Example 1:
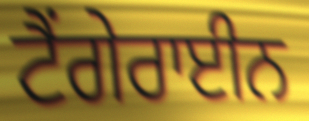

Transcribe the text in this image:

ਟੈਂਗੇਰਾਈਨ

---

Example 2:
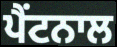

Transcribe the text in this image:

ਪੈਂਟਨਾਲ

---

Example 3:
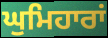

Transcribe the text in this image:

ਘੁਮਿਹਾਰਾਂ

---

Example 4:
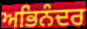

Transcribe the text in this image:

ਅਭਿਨੰਦਰ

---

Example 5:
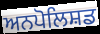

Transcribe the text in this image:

ਅਨਪੋਲਿਸ਼ਡ